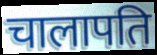
चालापति